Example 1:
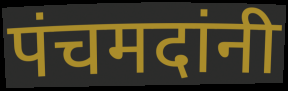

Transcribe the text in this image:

पंचमदांनी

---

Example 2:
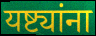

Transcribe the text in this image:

यष्ट्यांना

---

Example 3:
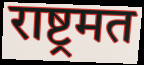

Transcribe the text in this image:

राष्ट्रमत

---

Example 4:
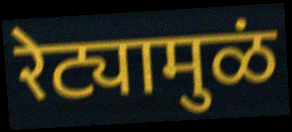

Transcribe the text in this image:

रेट्यामुळं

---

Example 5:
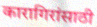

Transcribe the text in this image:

कारागिरांसाठी